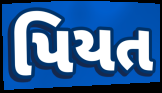
પિયત